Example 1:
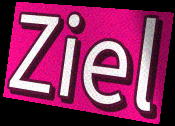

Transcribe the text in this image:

Ziel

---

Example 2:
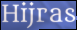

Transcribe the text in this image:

Hijras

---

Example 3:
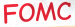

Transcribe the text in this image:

FOMC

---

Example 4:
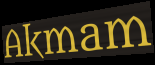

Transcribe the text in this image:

Akmam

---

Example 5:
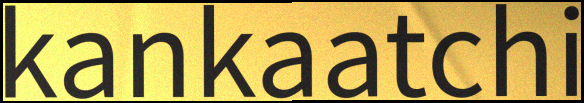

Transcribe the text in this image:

kankaatchi